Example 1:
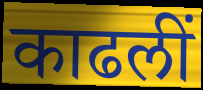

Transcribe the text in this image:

काढलीं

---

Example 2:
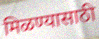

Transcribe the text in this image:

मिळण्यासाठी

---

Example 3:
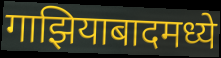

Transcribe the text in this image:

गाझियाबादमध्ये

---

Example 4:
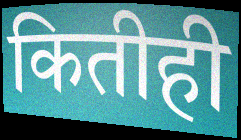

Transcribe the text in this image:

कितीही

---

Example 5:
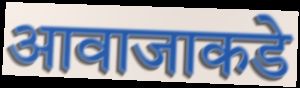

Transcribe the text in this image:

आवाजाकडे